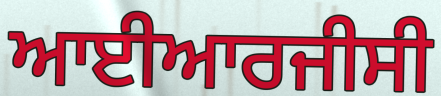
ਆਈਆਰਜੀਸੀ